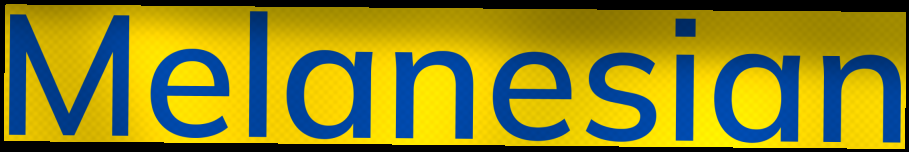
Melanesian